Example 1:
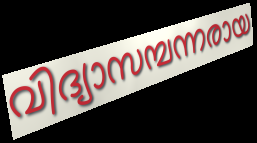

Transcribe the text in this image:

വിദ്യാസമ്പന്നരായ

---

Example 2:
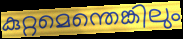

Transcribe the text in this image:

കുറ്റമെന്തെങ്കിലും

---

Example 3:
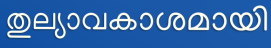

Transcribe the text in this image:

തുല്യാവകാശമായി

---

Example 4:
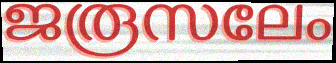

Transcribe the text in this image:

ജരൂസലേം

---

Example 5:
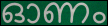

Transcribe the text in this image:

ഓണം